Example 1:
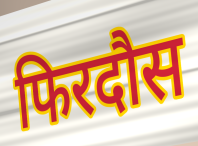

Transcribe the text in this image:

फिरदौस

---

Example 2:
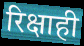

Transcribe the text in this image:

रिक्षाही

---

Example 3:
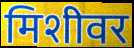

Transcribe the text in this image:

मिशीवर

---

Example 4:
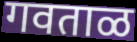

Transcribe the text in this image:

गवताळ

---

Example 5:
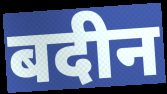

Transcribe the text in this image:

बदीन